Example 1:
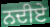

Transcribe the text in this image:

ਨਦੀਏ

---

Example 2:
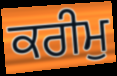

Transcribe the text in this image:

ਕਰੀਮੁ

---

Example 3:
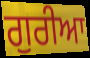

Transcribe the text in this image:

ਗੁਰੀਆ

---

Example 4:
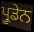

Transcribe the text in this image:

ਪ੍ਰੂਡੇਨ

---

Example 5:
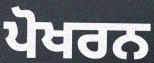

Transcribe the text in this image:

ਪੋਖਰਨ